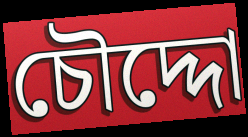
চৌদ্দো